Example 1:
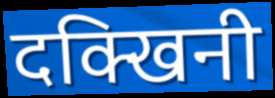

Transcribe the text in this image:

दक्खिनी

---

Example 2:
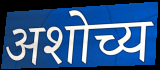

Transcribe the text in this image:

अशोच्य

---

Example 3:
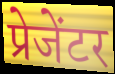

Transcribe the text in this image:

प्रेजेंटर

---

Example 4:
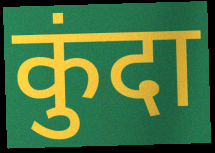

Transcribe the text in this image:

कुंदा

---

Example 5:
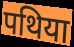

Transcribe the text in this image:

पथिया